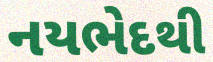
નયભેદથી